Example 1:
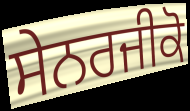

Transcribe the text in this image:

ਸੇਨਰਜੀਕੋ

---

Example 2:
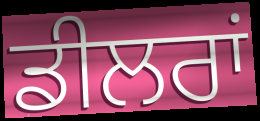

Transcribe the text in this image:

ਡੀਲਰਾਂ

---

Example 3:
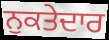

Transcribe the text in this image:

ਨੁਕਤੇਦਾਰ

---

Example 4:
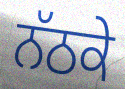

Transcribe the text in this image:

ਨੱਠਕੇ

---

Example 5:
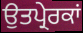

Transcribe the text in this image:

ਉਤਪ੍ਰੇਰਕਾਂ